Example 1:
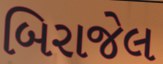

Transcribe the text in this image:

બિરાજેલ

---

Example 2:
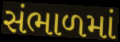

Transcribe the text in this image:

સંભાળમાં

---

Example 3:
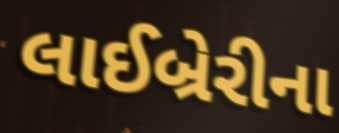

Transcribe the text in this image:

લાઈબ્રેરીના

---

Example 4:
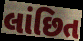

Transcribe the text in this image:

લાંછિત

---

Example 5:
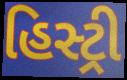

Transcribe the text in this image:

હિસ્ટ્રી